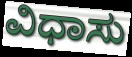
ವಿಧಾಸು